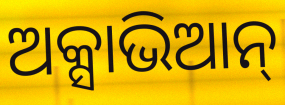
ଅକ୍ସାଭିଆନ୍